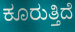
ಕೂರುತ್ತಿದೆ